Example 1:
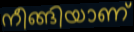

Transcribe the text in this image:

നീങ്ങിയാണ്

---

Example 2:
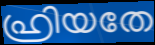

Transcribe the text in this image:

ഹ്രിയതേ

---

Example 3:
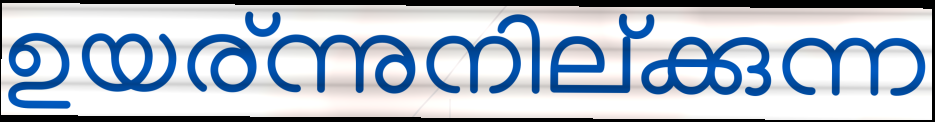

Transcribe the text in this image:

ഉയര്ന്നുനില്ക്കുന്ന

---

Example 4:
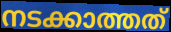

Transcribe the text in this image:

നടക്കാത്തത്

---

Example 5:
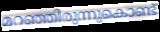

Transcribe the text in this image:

മറഞ്ഞിരുന്നുകൊണ്ട്